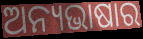
ଅନ୍ୟଭାଷାର